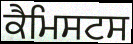
ਕੈਮਿਸਟਸ